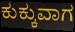
ಕುಕ್ಕುವಾಗ